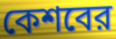
কেশবের